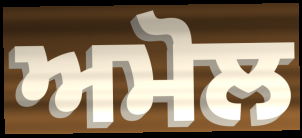
ਅਮੋਲ